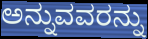
ಅನ್ನುವವರನ್ನು